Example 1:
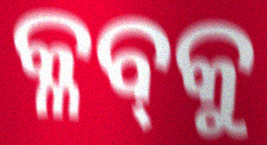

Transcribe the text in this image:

କ୍ଳବ୍‌କୁ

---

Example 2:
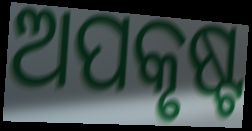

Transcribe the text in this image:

ଅପକୃଷ୍ଟ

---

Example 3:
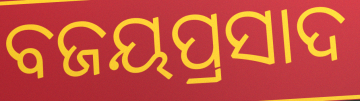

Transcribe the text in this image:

ବଜୟପ୍ରସାଦ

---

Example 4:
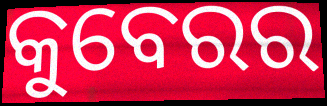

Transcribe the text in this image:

କୁବେରର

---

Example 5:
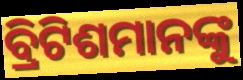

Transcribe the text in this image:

ବ୍ରିଟିଶମାନଙ୍କୁ